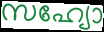
സഹ്യോ